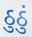
ઠુઠું